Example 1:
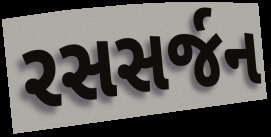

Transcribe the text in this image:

રસસર્જન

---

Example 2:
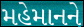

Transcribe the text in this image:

મહેમાનને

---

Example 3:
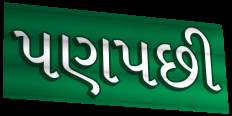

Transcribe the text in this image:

પણપછી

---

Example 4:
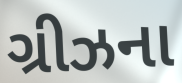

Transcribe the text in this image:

ગ્રીઝના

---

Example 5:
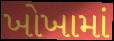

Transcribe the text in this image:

ખોખામાં